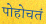
पोहोचतं